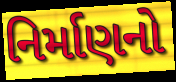
નિર્માણનો